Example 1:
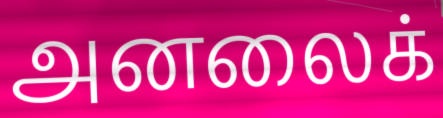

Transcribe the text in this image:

அனலைக்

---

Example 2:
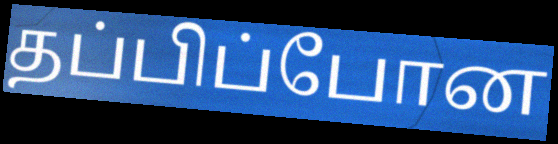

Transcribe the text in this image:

தப்பிப்போன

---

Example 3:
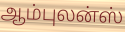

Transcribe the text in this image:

ஆம்புலன்ஸ்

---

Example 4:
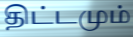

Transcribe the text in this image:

திட்டமும்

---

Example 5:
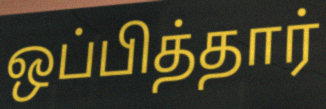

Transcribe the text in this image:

ஒப்பித்தார்